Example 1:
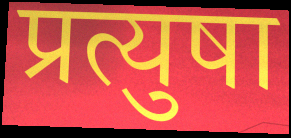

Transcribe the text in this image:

प्रत्युषा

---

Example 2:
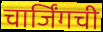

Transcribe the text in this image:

चार्जिंगची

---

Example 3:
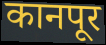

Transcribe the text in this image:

कानपूर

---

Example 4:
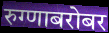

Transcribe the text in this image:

रुग्णाबरोबर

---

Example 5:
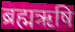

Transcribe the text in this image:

ब्रह्मऋषि